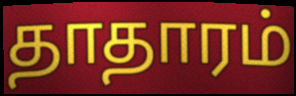
தாதாரம்